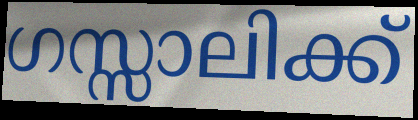
ഗസ്സാലിക്ക്